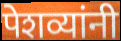
पेशव्यांनी